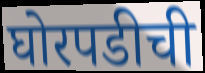
घोरपडीची